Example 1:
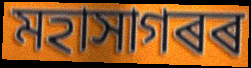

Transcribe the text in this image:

মহাসাগৰৰ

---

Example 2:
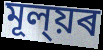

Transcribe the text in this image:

মূল্য়ৰ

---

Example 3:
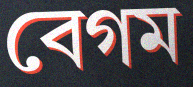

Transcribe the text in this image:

বেগম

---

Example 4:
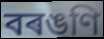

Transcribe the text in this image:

বৰঙণি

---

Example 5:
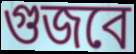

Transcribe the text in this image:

গুজবে